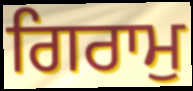
ਗਿਰਾਮੁ